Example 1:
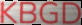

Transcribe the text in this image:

KBGD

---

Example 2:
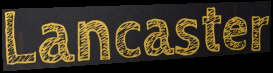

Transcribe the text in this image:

Lancaster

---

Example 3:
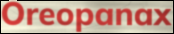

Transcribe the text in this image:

Oreopanax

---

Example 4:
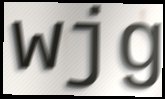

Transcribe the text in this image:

wjg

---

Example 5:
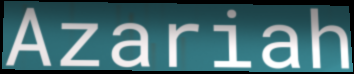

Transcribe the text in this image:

Azariah